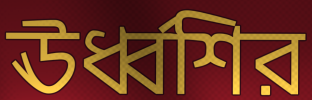
ঊর্ধ্বশির